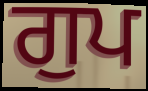
ਗੁਪ